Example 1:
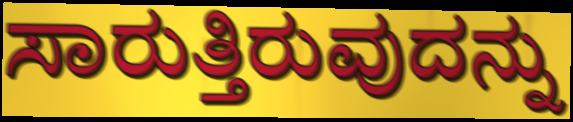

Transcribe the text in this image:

ಸಾರುತ್ತಿರುವುದನ್ನು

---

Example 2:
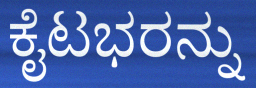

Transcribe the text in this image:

ಕೈಟಭರನ್ನು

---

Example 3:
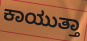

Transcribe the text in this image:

ಕಾಯುತ್ತಾ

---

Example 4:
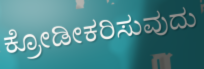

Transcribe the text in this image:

ಕ್ರೋಡೀಕರಿಸುವುದು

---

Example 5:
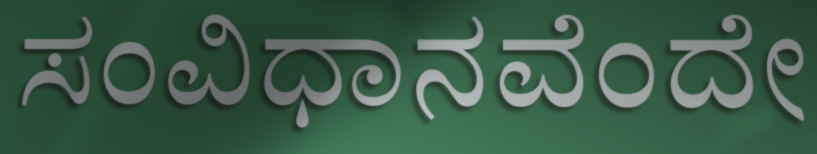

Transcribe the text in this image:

ಸಂವಿಧಾನವೆಂದೇ